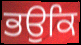
ਭਉਕਿ